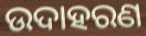
ଉଦାହରଣ